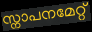
സ്നാപനമേറ്റ്